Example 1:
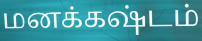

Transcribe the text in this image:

மனக்கஷ்டம்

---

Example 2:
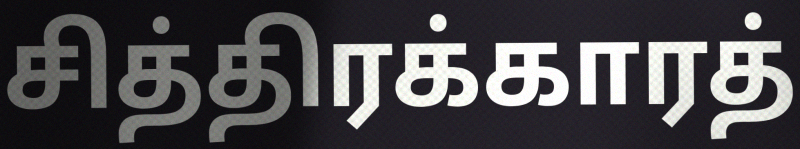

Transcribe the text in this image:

சித்திரக்காரத்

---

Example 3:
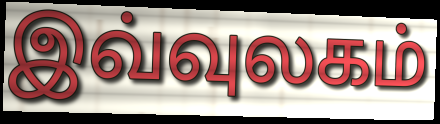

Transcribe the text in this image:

இவ்வுலகம்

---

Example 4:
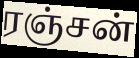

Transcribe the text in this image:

ரஞ்சன்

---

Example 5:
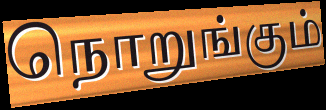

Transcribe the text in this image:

நொறுங்கும்